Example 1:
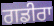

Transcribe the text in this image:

ਗਡੀਰਾ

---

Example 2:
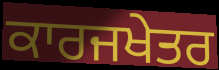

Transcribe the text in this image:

ਕਾਰਜਖੇਤਰ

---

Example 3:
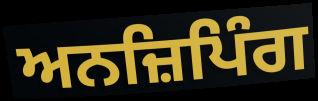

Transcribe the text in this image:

ਅਨਜ਼ਿਪਿੰਗ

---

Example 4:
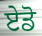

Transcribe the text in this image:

ਏਡੋ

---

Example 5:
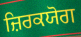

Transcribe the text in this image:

ਜ਼ਿਰਕਯੋਗ